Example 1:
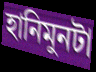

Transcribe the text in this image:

হানিমুনটা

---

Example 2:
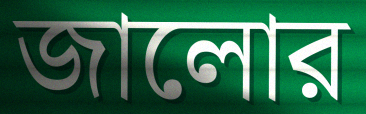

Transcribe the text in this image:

জালোর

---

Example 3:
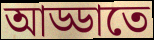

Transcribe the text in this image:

আড্ডাতে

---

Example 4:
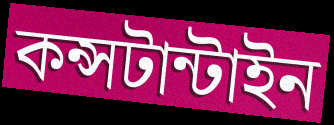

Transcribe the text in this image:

কন্সটান্টাইন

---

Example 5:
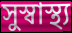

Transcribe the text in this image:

সুস্বাস্থ্য